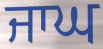
ਜਾਘ